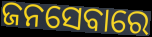
ଜନସେବାରେ